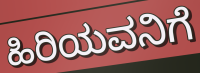
ಹಿರಿಯವನಿಗೆ